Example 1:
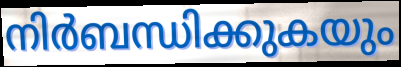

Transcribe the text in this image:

നിർബന്ധിക്കുകയും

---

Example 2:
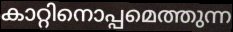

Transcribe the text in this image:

കാറ്റിനൊപ്പമെത്തുന്ന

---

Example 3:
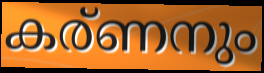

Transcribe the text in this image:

കര്ണനും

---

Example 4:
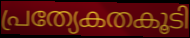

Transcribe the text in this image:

പ്രത്യേകതകൂടി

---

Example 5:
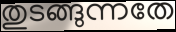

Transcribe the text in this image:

തുടങ്ങുന്നതേ